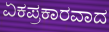
ಏಕಪ್ರಕಾರವಾದ